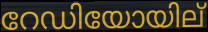
റേഡിയോയില്